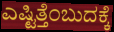
ಎಷ್ಟಿತ್ತೆಂಬುದಕ್ಕೆ